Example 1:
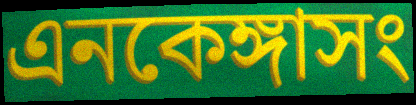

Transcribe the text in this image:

এনকেঙ্গাসং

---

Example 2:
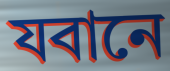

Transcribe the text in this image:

যবানে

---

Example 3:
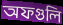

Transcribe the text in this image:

অফগুলি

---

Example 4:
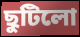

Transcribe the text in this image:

ছুটিলো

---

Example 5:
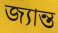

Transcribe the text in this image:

জ্যান্ত